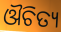
ଔଚିତ୍ଯ